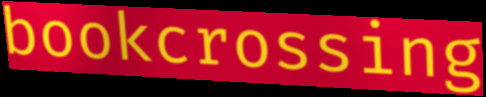
bookcrossing